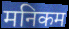
मनिकम